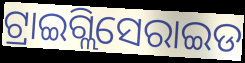
ଟ୍ରାଇଗ୍ଲିସେରାଇଡ